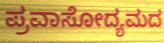
ಪ್ರವಾಸೋದ್ಯಮದ